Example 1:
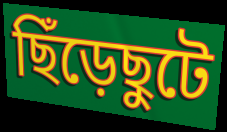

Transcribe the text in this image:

ছিঁড়েছুটে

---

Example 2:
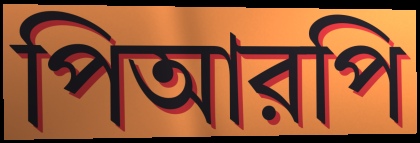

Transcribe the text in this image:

পিআরপি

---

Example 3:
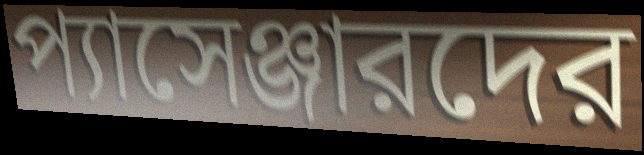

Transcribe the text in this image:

প্যাসেঞ্জারদের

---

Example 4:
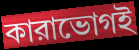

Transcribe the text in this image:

কারাভোগই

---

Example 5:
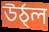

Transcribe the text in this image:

উঠ্ল